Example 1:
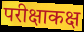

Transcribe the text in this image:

परीक्षाकक्ष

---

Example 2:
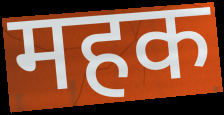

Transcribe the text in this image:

महक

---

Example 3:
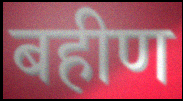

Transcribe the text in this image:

बहीण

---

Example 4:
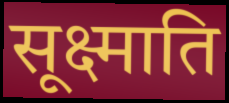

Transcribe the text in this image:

सूक्ष्माति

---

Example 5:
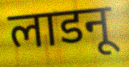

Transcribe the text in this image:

लाडनू